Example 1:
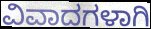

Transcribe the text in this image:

ವಿವಾದಗಳಾಗಿ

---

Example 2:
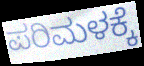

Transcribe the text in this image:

ಪರಿಮಳಕ್ಕೆ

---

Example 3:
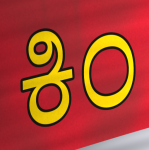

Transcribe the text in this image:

ಕಿಂ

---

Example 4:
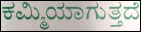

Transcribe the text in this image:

ಕಮ್ಮಿಯಾಗುತ್ತದೆ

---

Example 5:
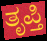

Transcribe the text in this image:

ತೃಪ್ತಿ